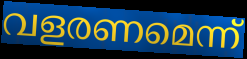
വളരണമെന്ന്